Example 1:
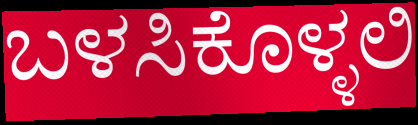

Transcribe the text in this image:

ಬಳಸಿಕೊಳ್ಳಲಿ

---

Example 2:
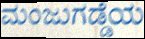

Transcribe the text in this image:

ಮಂಜುಗಡ್ಡೆಯ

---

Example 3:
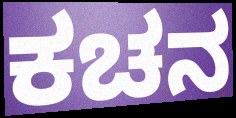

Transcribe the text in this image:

ಕಚನ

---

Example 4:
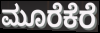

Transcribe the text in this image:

ಮೂರೆಕೆರೆ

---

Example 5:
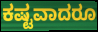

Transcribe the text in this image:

ಕಷ್ಟವಾದರೂ